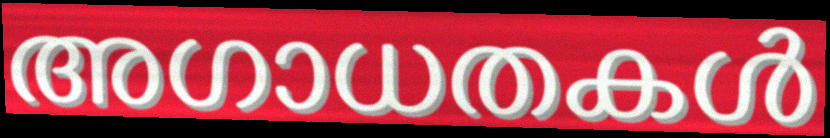
അഗാധതകൾ